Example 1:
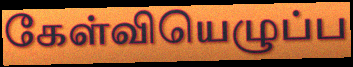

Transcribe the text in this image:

கேள்வியெழுப்ப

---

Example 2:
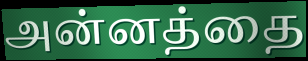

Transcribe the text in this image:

அன்னத்தை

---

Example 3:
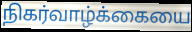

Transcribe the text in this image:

நிகர்வாழ்க்கையை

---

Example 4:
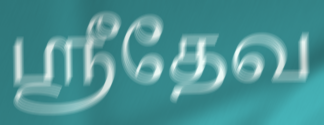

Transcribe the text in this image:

ஸ்ரீதேவ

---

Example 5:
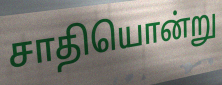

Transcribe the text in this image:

சாதியொன்று